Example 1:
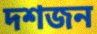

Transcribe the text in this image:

দশজন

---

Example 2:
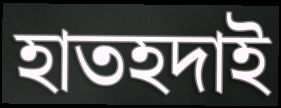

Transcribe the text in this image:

হাতহদাই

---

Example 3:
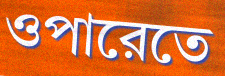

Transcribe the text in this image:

ওপারেতে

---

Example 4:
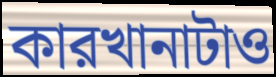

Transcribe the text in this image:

কারখানাটাও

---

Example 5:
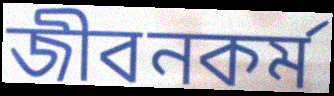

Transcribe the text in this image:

জীবনকর্ম